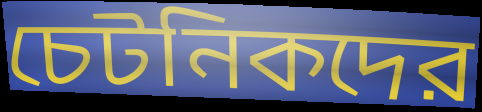
চেটনিকদের